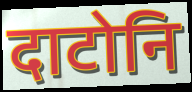
दाटोनि